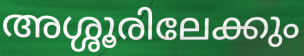
അശ്ശൂരിലേക്കും